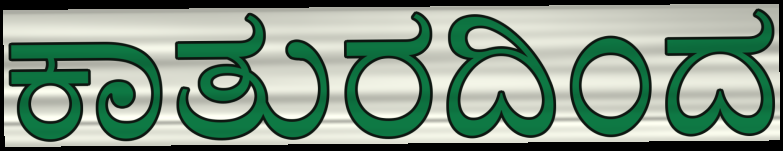
ಕಾತುರದಿಂದ